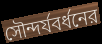
সৌন্দর্যবর্ধনের